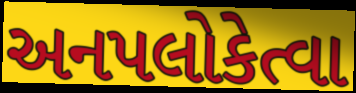
અનપલોકેત્વા